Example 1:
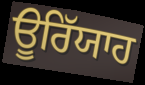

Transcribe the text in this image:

ਊਰਿੱਯਾਹ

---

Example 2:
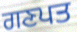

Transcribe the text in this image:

ਗਣਪਤ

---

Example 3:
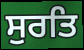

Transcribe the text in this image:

ਸੁਰਤਿ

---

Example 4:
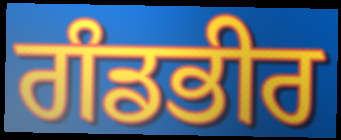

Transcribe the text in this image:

ਗੰਡਭੀਰ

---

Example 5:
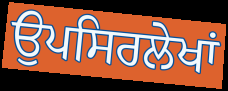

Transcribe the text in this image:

ਉਪਸਿਰਲੇਖਾਂ